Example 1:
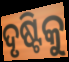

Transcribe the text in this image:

ଦୃଷ୍ଟିକୁ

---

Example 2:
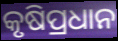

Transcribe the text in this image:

କୃଷିପ୍ରଧାନ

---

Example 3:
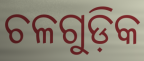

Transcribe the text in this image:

ଚଳଗୁଡ଼ିକ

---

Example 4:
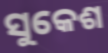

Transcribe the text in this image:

ସୁକେଶ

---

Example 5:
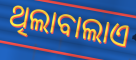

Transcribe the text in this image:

ଥିଲାବାଲାଏ